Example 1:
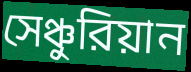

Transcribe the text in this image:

সেঞ্চুরিয়ান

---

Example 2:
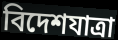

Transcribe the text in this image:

বিদেশযাত্রা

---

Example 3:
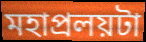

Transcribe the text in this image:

মহাপ্রলয়টা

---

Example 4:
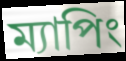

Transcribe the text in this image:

ম্যাপিং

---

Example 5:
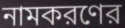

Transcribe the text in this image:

নামকরণের